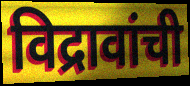
विद्रावांची